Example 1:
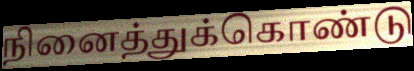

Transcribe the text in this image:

நினைத்துக்கொண்டு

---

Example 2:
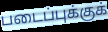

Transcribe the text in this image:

படைப்புக்குக்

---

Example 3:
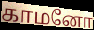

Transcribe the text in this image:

காமனோ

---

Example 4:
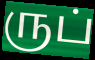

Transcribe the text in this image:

ருப்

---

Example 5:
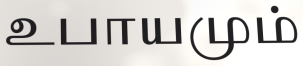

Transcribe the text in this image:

உபாயமும்